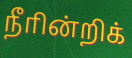
நீரின்றிக்